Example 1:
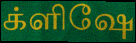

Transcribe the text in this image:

க்ளிஷே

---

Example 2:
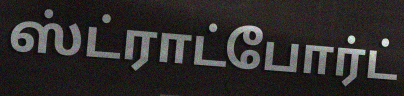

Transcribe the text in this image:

ஸ்ட்ராட்போர்ட்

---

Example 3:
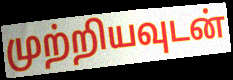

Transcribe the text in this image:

முற்றியவுடன்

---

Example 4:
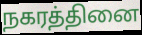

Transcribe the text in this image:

நகரத்தினை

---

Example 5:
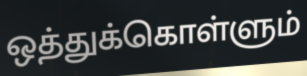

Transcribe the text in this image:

ஒத்துக்கொள்ளும்